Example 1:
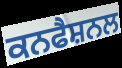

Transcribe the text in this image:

ਕਨਫੈਸ਼ਨਲ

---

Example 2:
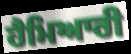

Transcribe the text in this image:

ਹੈਮਿਆਰੀ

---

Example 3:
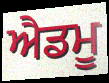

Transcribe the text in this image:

ਐਡਮੂ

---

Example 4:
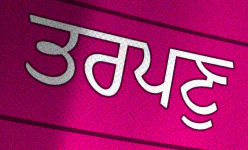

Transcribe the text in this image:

ਤਰਪਣੁ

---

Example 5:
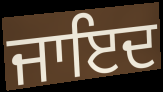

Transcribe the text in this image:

ਜਾਇਦ